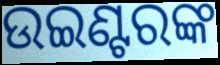
ଉଇଣ୍ଟରଙ୍କ